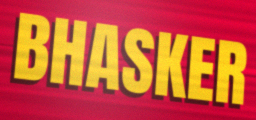
BHASKER